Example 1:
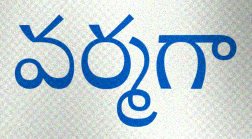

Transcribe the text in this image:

వర్మగా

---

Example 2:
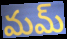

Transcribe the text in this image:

మమ్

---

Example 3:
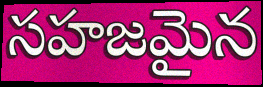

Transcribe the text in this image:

సహజమైన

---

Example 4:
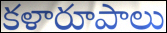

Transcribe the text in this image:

కళారూపాలు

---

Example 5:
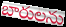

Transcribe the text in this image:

బారులను